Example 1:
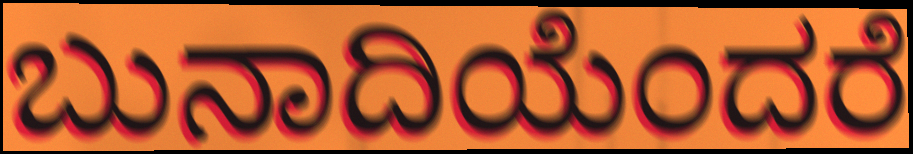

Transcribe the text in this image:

ಬುನಾದಿಯೆಂದರೆ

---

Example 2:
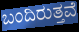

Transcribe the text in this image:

ಬಂದಿರುತ್ತವೆ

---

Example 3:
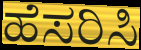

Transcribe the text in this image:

ಹೆಸರಿಸಿ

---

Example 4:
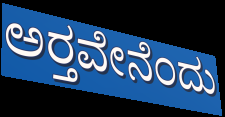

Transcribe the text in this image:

ಅರ‍್ತವೇನೆಂದು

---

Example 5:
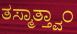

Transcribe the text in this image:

ತಸ್ಮಾತ್ತ್ವಾಂ